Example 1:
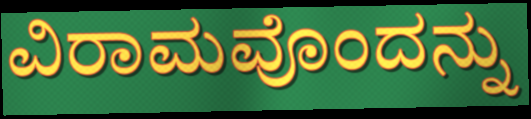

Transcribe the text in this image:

ವಿರಾಮವೊಂದನ್ನು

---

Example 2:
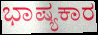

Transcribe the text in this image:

ಭಾಷ್ಯಕಾರ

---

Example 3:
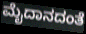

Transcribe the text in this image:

ಮೈದಾನದಂತೆ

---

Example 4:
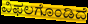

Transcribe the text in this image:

ವಿಫಲಗೊಂಡಿದೆ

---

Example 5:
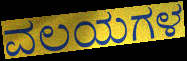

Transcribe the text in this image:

ವಲಯಗಳ